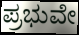
ಪ್ರಭುವೇ